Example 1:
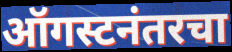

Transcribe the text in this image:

ऑगस्टनंतरचा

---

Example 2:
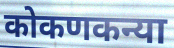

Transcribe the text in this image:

कोकणकन्या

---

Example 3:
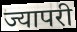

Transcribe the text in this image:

ज्यापरी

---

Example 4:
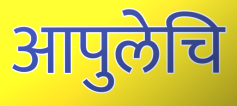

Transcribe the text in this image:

आपुलेचि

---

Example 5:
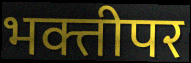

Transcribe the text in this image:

भक्तीपर